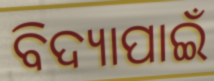
ବିଦ୍ୟାପାଇଁ